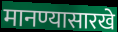
मानण्यासारखे